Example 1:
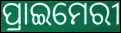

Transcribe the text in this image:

ପ୍ରାଇମେରୀ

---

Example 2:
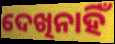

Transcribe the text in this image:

ଦେଖିନାହିଁ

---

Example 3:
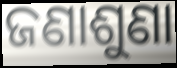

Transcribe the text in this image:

ଜଣାଶୁଣା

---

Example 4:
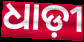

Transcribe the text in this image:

ଧାଡ଼ୀ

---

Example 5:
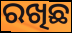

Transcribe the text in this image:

ରଖିଛ